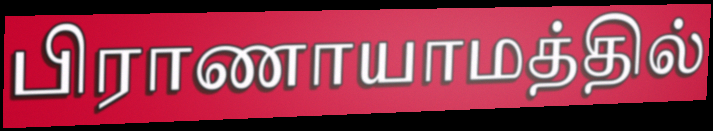
பிராணாயாமத்தில்